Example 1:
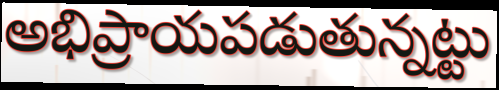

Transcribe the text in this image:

అభిప్రాయపడుతున్నట్టు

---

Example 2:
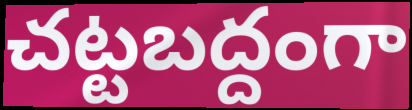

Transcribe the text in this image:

చట్టబద్దంగా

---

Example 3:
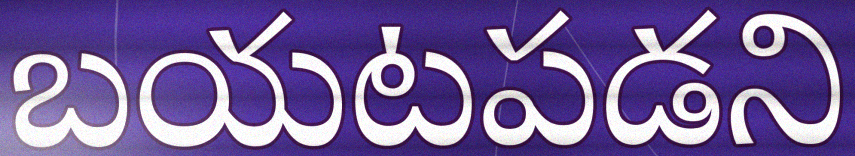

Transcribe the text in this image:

బయటపడని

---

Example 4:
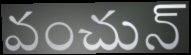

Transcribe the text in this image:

వంచున్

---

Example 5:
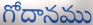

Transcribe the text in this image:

గోదానము